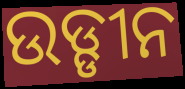
ଉଡ୍ଡୀନ